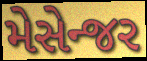
મેસેન્જર